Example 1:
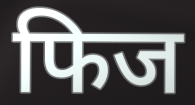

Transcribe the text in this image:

फिज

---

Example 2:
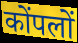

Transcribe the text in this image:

कोंपलों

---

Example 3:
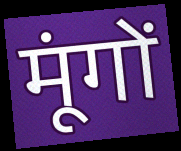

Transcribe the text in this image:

मूंगों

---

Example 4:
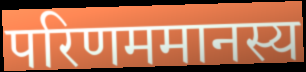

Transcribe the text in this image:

परिणममानस्य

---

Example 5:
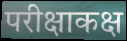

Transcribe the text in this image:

परीक्षाकक्ष